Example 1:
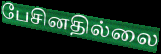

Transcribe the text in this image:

பேசினதில்லை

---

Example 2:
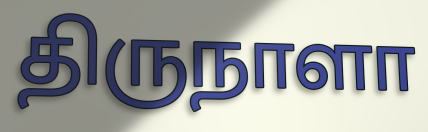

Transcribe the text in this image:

திருநாளா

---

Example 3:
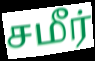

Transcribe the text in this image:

சமீர்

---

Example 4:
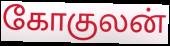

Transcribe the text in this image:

கோகுலன்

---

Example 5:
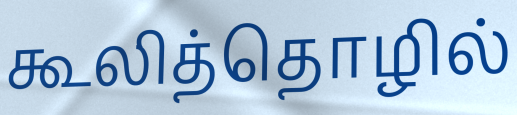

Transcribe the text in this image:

கூலித்தொழில்